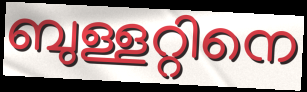
ബുള്ളറ്റിനെ